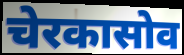
चेरकासोव